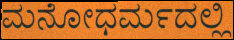
ಮನೋಧರ್ಮದಲ್ಲಿ